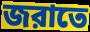
জরাতে